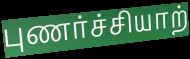
புணர்ச்சியாற்